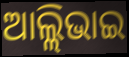
ଆଲ୍ଲିଭାଇ